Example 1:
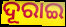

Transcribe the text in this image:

ଦୂରାଇ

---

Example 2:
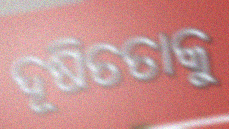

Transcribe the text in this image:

ଦୂଷିତତାକୁ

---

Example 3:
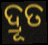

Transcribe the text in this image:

ଦ୍ରୂତ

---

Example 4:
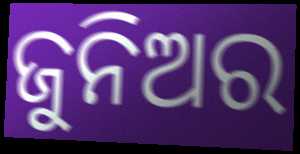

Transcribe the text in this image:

ଜୁନିଅର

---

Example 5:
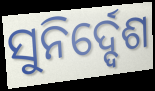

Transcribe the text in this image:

ସୁନିର୍ଦ୍ଦେଶ